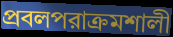
প্রবলপরাক্রমশালী